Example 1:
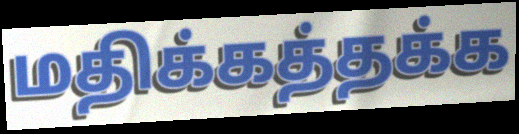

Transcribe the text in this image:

மதிக்கத்தக்க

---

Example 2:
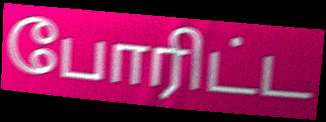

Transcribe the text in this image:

போரிட்ட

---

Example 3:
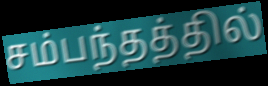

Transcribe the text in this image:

சம்பந்தத்தில்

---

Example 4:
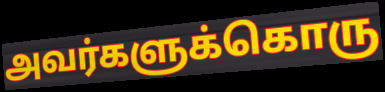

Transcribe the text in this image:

அவர்களுக்கொரு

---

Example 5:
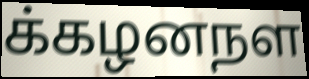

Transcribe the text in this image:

க்கழனநள